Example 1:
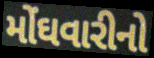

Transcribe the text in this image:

મોંઘવારીનો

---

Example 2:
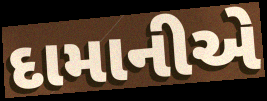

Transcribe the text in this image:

દામાનીએ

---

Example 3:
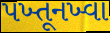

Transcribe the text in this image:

પખ્તૂનખ્વા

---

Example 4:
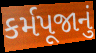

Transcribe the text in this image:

કર્મપૂજાનું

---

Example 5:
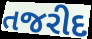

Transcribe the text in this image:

તજરીદ